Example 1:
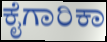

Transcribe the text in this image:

ಕೈಗಾರಿಕಾ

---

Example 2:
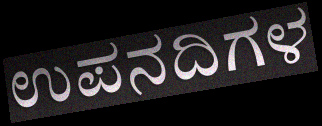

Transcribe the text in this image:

ಉಪನದಿಗಳ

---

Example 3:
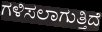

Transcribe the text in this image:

ಗಳಿಸಲಾಗುತ್ತಿದೆ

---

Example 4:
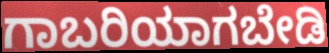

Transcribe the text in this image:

ಗಾಬರಿಯಾಗಬೇಡಿ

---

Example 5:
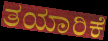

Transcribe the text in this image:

ತಯಾರಿಕೆ